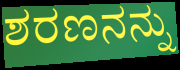
ಶರಣನನ್ನು